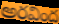
అరవింద